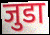
जुडा